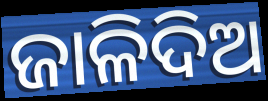
ଜାଳିଦିଅ